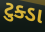
ટુક્ડા